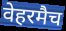
वेहरमैच